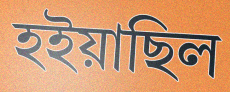
হইয়াছিল